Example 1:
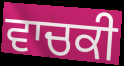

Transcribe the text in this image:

ਵਾਚਕੀ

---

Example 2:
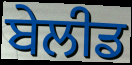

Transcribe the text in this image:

ਬੇਲੀਡ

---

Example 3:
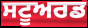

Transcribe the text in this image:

ਸਟੂਅਰਡ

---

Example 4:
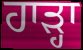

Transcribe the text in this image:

ਹਾੜ੍ਹਾ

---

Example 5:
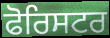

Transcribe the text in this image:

ਫੋਰਿਸਟਰ